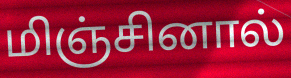
மிஞ்சினால்